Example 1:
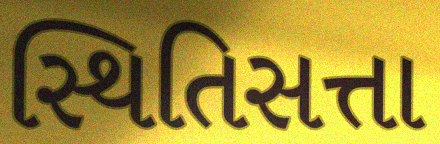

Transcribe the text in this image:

સ્થિતિસત્તા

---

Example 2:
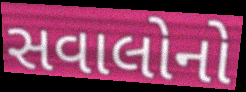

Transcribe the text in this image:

સવાલોનો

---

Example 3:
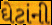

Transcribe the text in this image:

ઘેટાંની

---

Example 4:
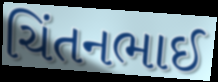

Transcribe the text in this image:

ચિંતનભાઈ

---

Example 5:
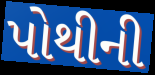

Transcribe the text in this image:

પોથીની